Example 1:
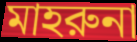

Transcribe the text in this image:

মাহরুনা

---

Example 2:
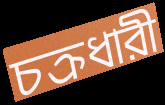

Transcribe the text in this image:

চক্রধারী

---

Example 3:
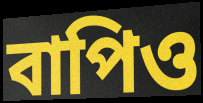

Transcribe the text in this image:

বাপিও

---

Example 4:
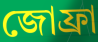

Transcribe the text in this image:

জোফ্রা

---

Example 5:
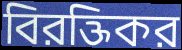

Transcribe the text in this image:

বিরক্তিকর